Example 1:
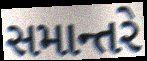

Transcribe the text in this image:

સમાન્તરે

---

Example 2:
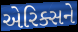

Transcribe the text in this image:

એરિક્સને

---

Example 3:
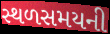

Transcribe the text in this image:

સ્થળસમયની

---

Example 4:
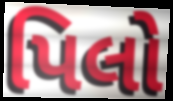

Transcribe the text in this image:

પિલો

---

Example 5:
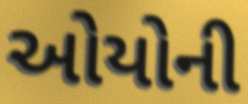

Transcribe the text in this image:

ઓયોની